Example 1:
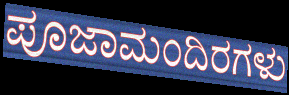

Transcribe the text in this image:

ಪೂಜಾಮಂದಿರಗಳು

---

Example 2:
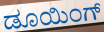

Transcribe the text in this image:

ಡೂಯಿಂಗ್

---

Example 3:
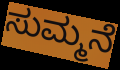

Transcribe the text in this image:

ಸುಮ್ಮನೆ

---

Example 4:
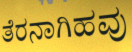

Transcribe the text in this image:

ತೆರನಾಗಿಹವು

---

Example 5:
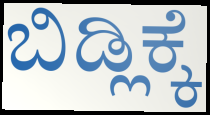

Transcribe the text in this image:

ಬಿಡ್ಲಿಕ್ಕೆ